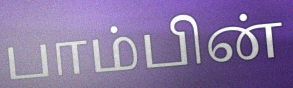
பாம்பின்